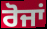
ਰੋਜਾਂ